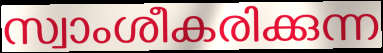
സ്വാംശീകരിക്കുന്ന